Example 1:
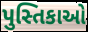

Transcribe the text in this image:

પુસ્તિકાઓ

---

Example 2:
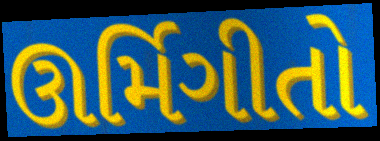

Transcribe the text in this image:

ઊર્મિગીતો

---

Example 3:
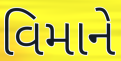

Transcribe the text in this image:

વિમાને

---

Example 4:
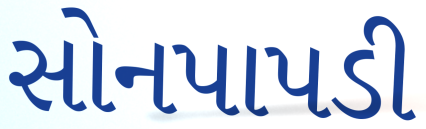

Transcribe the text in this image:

સોનપાપડી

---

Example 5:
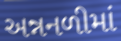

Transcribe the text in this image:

અન્નનળીમાં